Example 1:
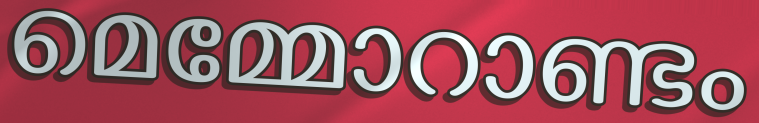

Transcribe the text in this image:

മെമ്മോറാണ്ടം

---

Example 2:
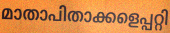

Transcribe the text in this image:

മാതാപിതാക്കളെപ്പറ്റി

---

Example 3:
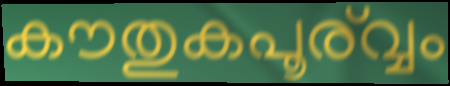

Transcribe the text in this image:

കൗതുകപൂര്വ്വം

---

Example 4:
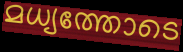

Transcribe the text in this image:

മധ്യത്തോടെ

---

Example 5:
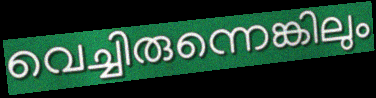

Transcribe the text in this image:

വെച്ചിരുന്നെങ്കിലും